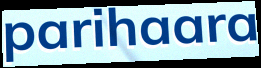
parihaara